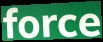
force